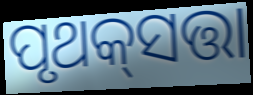
ପୃଥକ୍‌ସତ୍ତା